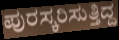
ಪುರಸ್ಕರಿಸುತ್ತಿದ್ದ